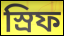
স্রিফ